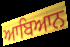
ਆਬਿਆਨ